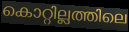
കൊറ്റില്ലത്തിലെ